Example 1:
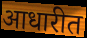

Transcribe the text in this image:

आधारीत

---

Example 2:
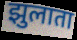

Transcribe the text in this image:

झुलाता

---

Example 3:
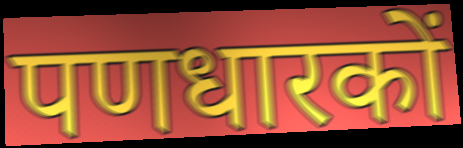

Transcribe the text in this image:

पणधारकों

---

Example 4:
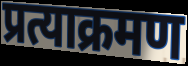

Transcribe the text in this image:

प्रत्याक्रमण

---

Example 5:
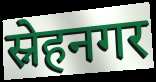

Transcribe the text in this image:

स्नेहनगर